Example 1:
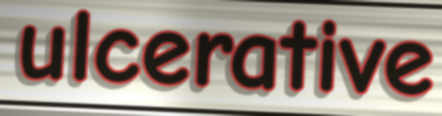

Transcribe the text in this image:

ulcerative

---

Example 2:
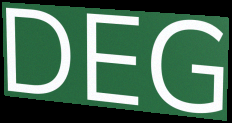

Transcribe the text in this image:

DEG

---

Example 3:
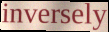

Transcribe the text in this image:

inversely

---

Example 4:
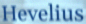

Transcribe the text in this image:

Hevelius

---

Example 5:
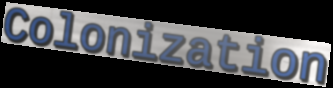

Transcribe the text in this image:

Colonization